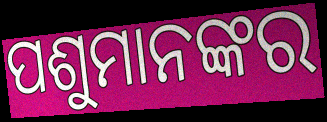
ପଶୁମାନଙ୍କର